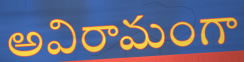
అవిరామంగా